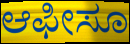
ಆಫೀಸೂ